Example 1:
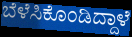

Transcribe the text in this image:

ಬೆಳೆಸಿಕೊಂಡಿದ್ದಾಳೆ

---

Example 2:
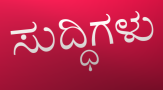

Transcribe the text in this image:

ಸುದ್ಧಿಗಳು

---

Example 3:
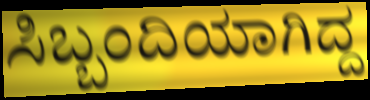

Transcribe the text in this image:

ಸಿಬ್ಬಂದಿಯಾಗಿದ್ದ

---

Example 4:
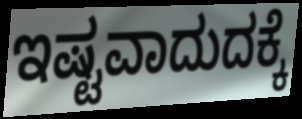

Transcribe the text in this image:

ಇಷ್ಟವಾದುದಕ್ಕೆ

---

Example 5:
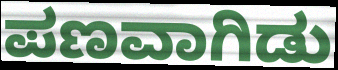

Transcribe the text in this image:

ಪಣವಾಗಿಡು